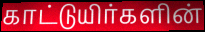
காட்டுயிர்களின்